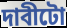
দাবীটো